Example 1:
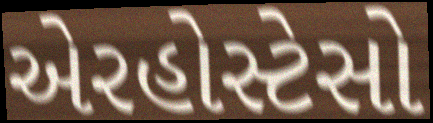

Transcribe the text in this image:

એરહોસ્ટેસો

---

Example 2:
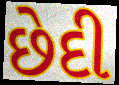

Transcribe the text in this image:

છેદી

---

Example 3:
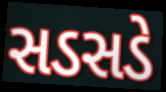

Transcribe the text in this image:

સડસડે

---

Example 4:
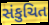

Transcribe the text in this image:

સંકુચિત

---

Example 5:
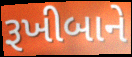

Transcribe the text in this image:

રૂખીબાને